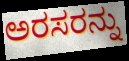
ಅರಸರನ್ನು